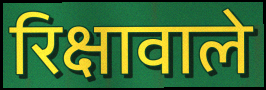
रिक्षावाले